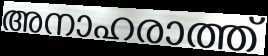
അനാഹരാത്ത്